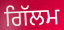
ਗਿੱਲਮ